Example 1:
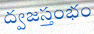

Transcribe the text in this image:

ద్వజస్తంభం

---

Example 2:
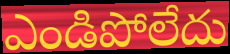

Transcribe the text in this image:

ఎండిపోలేదు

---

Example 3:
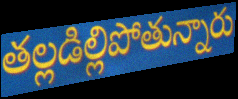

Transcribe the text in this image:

తల్లడిల్లిపోతున్నారు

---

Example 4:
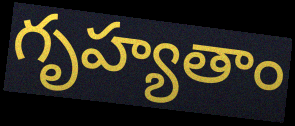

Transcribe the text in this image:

గృహ్యతాం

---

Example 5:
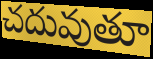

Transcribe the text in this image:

చదువుతూ